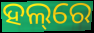
ହଲ୍‌ରେ